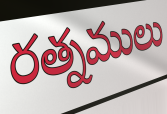
రత్నములు